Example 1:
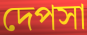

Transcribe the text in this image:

দেপসা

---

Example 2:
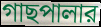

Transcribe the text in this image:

গাছপালার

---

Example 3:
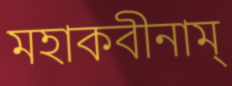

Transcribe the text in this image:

মহাকবীনাম্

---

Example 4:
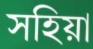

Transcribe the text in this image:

সহিয়া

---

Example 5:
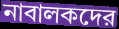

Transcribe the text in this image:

নাবালকদের